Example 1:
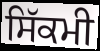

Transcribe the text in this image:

ਸਿੱਕਮੀ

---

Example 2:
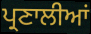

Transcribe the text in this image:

ਪ੍ਰਣਾਲੀਆਂ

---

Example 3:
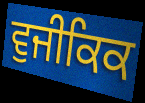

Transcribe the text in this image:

ਵੁਜੀਕਿਕ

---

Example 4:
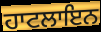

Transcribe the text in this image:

ਹਾਟਲਾਇਨ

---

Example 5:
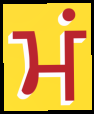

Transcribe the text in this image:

ਮਂ